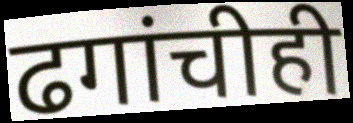
ढगांचीही